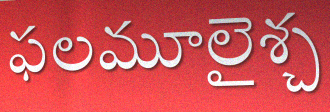
ఫలమూలైశ్చ